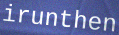
irunthen